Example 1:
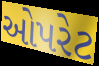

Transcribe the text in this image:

ઓપરેટ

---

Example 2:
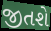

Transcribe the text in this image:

જીતશે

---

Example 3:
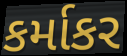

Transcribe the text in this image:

કર્માકર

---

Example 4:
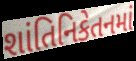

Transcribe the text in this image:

શાંતિનિકેતનમાં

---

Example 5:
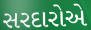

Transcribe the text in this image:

સરદારોએ